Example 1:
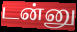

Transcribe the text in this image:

டன்னு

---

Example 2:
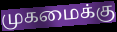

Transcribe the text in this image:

முகமைக்கு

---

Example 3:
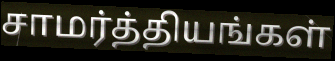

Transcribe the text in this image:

சாமர்த்தியங்கள்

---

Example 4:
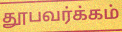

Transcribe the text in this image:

தூபவர்க்கம்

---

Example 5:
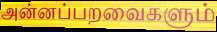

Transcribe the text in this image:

அன்னப்பறவைகளும்